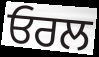
ਓਰਲ